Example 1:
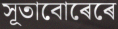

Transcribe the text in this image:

সূতাবোৰেৰে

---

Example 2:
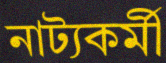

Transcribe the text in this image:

নাট্যকৰ্মী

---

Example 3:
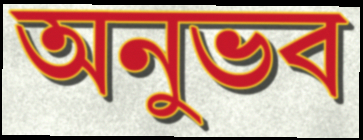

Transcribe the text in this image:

অনুভব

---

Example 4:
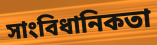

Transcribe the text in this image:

সাংবিধানিকতা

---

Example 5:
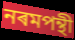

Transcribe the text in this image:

নৰমপন্থী